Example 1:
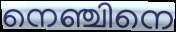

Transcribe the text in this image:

നെഞ്ചിനെ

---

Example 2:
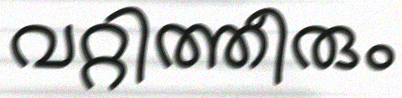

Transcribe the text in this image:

വറ്റിത്തീരും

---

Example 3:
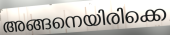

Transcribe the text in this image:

അങ്ങനെയിരിക്കെ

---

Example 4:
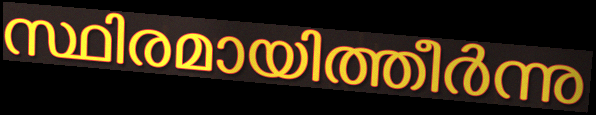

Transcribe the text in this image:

സ്ഥിരമായിത്തീർന്നു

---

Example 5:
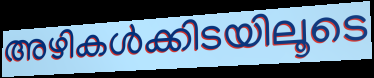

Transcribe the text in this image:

അഴികൾക്കിടയിലൂടെ